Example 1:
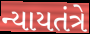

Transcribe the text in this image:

ન્યાયતંત્રે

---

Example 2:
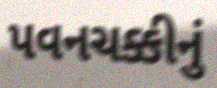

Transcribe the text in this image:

પવનચક્કીનું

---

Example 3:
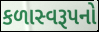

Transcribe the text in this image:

કળાસ્વરૂપનો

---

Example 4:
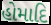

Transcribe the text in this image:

હોમાદિ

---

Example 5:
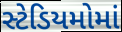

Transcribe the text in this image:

સ્ટેડિયમોમાં